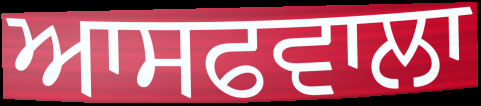
ਆਸਫਵਾਲਾ